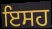
ਇਸਹ